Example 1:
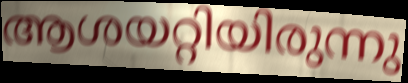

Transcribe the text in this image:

ആശയറ്റിയിരുന്നു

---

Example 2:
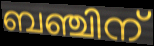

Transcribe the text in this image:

ബഞ്ചിന്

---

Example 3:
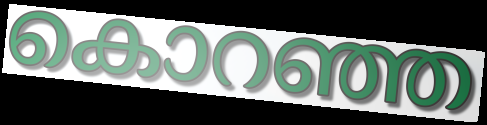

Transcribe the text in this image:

കൊറഞ്ഞ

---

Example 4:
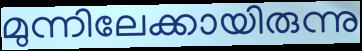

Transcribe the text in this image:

മുന്നിലേക്കായിരുന്നു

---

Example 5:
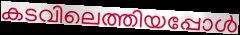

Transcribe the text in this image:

കടവിലെത്തിയപ്പോൾ